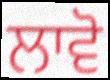
ਲਾਵੋ